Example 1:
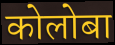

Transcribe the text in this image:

कोलोबा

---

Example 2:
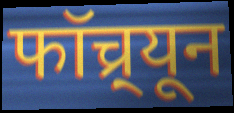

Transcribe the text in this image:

फॉच्र्यून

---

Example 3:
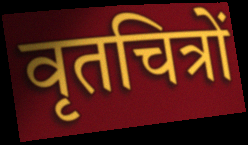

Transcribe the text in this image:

वृतचित्रों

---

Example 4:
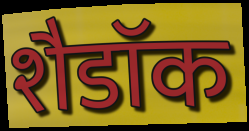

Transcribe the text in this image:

शैडॉक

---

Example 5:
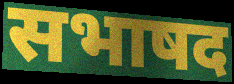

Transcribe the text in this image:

सभाषद